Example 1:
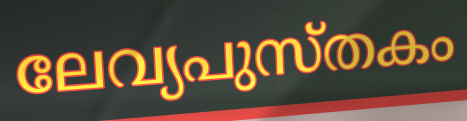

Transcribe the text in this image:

ലേവ്യപുസ്തകം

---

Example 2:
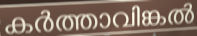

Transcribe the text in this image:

കർത്താവിങ്കൽ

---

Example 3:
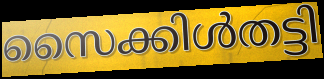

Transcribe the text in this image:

സൈക്കിൾതട്ടി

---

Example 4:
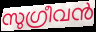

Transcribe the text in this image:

സുഗ്രീവൻ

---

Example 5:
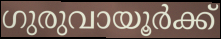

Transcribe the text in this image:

ഗുരുവായൂർക്ക്